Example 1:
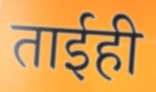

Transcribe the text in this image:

ताईही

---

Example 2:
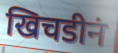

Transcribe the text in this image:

खिचडीनं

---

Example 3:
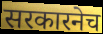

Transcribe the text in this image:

सरकारनेच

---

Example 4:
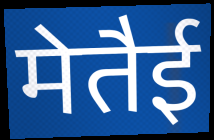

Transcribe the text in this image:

मेतैई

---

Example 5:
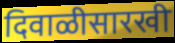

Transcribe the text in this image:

दिवाळीसारखी